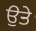
ਉਤੇ